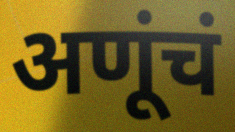
अणूंचं